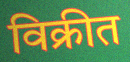
विक्रीत